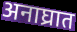
अनाघ्रात